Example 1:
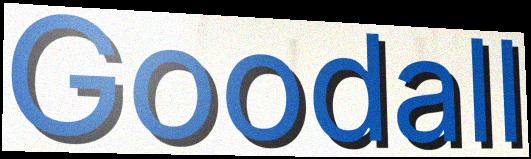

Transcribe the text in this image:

Goodall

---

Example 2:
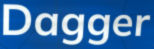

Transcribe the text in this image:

Dagger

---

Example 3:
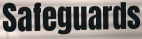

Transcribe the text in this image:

Safeguards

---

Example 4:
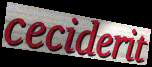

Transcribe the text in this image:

ceciderit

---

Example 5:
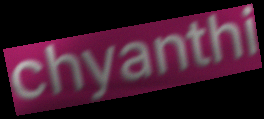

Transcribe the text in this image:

chyanthi